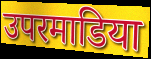
उपरमाडिया